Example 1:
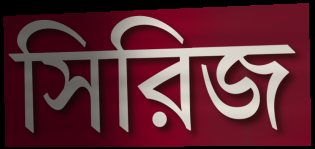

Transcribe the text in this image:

সিরিজ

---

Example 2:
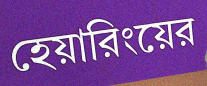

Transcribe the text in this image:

হেয়ারিংয়ের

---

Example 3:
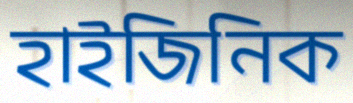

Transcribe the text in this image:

হাইজিনিক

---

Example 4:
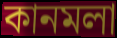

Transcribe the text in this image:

কানমলা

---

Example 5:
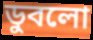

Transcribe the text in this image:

ডুবলো